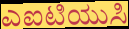
ಎಐಟಿಯುಸಿ